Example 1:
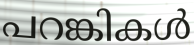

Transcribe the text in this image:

പറങ്കികൾ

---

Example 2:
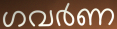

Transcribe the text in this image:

ഗവർണ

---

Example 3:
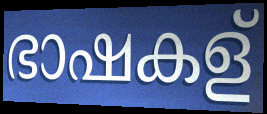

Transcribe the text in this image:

ഭാഷകള്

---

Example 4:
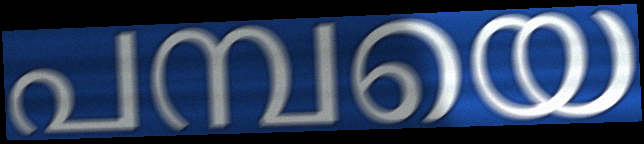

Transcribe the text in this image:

പമ്പയെ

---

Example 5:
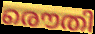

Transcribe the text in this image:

രൌതി